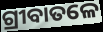
ଗ୍ରୀବାତଳେ